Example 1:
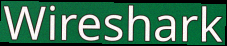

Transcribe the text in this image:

Wireshark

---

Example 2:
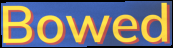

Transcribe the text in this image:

Bowed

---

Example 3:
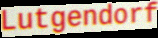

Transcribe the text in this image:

Lutgendorf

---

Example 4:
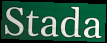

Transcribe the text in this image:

Stada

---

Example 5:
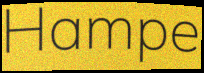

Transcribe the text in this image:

Hampe